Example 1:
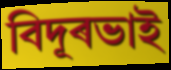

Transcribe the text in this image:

বিদূৰভাই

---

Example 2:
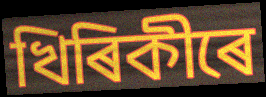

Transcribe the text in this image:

খিৰিকীৰে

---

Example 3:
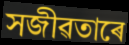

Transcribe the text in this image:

সজীৱতাৰে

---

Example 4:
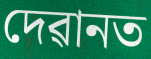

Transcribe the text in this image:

দেৱানত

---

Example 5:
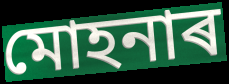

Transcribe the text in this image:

মোহনাৰ